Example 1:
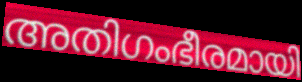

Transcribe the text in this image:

അതിഗംഭീരമായി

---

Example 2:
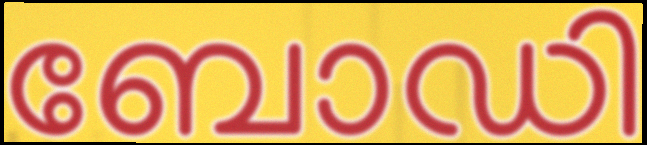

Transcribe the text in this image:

ബോഡി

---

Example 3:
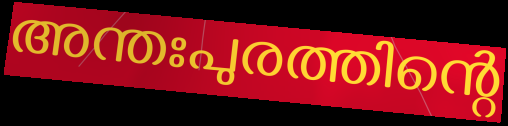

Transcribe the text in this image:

അന്തഃപുരത്തിന്റെ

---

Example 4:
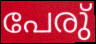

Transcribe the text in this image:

പേരു്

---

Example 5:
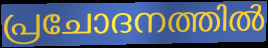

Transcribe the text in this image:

പ്രചോദനത്തിൽ